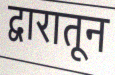
द्वारातून